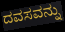
ದವಸವನ್ನು